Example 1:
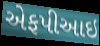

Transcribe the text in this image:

એફપીઆઇ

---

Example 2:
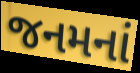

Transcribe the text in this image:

જનમનાં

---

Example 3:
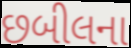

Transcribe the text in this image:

છબીલના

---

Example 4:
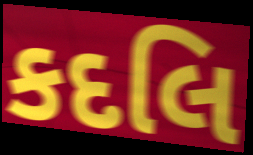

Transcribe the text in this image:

કદલિ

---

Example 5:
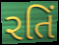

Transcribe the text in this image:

રતિં